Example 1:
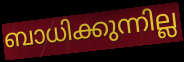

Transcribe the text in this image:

ബാധിക്കുന്നില്ല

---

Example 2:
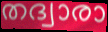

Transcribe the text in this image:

തദ്വാരാ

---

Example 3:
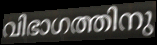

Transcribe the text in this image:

വിഭാഗത്തിനു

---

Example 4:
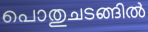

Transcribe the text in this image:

പൊതുചടങ്ങിൽ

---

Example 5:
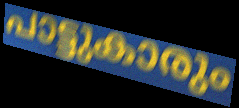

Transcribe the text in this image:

പാട്ടുകാരും